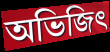
অভিজিৎ